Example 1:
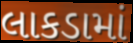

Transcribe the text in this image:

લાકડામાં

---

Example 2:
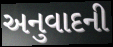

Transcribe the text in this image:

અનુવાદની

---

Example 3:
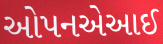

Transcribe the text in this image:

ઓપનએઆઈ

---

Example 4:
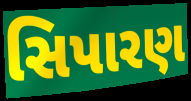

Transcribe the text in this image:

સિપારણ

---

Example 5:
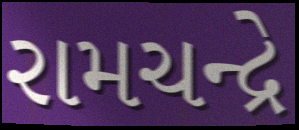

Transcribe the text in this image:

રામચન્દ્રે